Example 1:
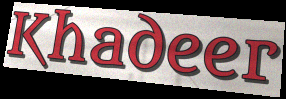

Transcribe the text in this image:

Khadeer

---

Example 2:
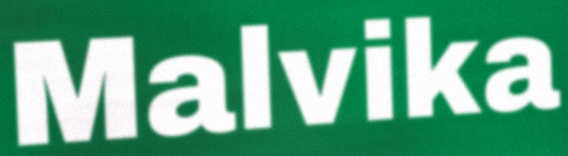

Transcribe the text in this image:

Malvika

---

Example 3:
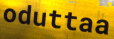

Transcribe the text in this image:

oduttaa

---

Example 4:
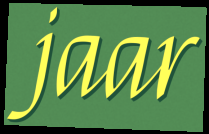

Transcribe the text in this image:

jaar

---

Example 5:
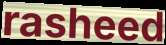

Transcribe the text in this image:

rasheed